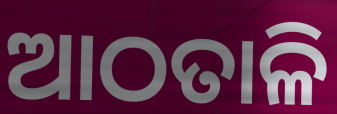
ଆଠତାଳି